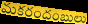
మకరందంబులు